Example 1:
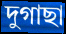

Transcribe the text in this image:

দুগাছা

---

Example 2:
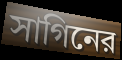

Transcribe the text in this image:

সাগিনের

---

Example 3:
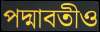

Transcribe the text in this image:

পদ্মাবতীও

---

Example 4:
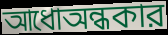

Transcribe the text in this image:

আধোঅন্ধকার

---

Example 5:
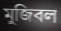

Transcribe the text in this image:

মুজিবল